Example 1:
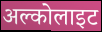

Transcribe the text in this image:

अल्कोलाइट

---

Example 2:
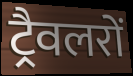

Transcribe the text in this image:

ट्रैवलरों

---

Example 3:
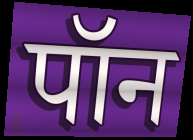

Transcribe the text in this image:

पॉन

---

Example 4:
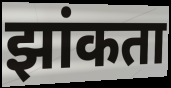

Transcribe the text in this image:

झांकता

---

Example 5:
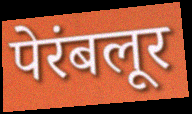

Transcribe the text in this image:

पेरंबलूर